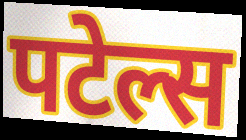
पटेल्स